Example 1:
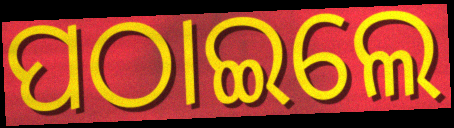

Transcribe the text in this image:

ପଠାଇଲେ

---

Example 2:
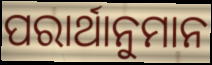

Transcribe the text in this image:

ପରାର୍ଥାନୁମାନ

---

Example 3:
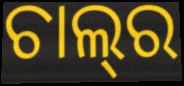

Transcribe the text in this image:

ଚାଲ୍‌ର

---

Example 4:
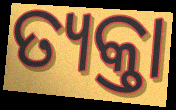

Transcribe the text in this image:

ତ୍ୟକ୍ତା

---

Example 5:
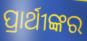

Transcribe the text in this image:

ପ୍ରାର୍ଥୀଙ୍କର